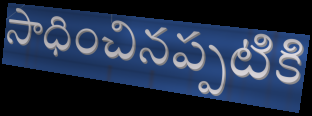
సాధించినప్పటికి